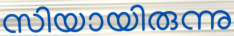
സിയായിരുന്നു